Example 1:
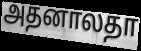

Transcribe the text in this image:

அதனாலதா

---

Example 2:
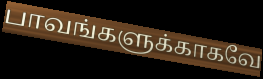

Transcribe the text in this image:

பாவங்களுக்காகவே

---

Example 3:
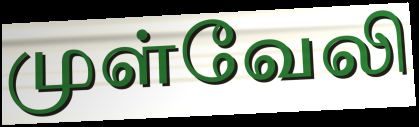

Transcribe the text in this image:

முள்வேலி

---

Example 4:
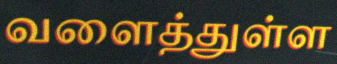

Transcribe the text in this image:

வளைத்துள்ள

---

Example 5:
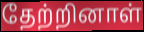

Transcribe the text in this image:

தேற்றினாள்